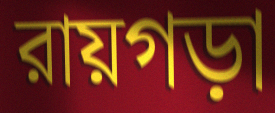
রায়গড়া